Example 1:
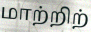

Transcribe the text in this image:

மாற்றிற்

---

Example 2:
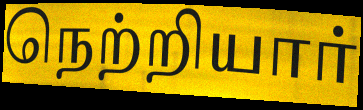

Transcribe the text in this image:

நெற்றியார்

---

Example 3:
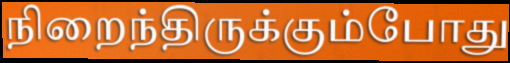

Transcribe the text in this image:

நிறைந்திருக்கும்போது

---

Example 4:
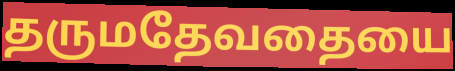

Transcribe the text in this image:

தருமதேவதையை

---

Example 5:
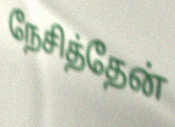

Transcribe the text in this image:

நேசித்தேன்